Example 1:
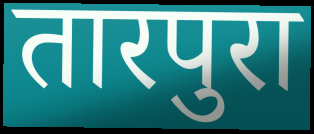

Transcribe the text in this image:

तारपुरा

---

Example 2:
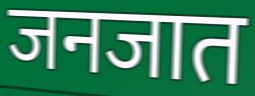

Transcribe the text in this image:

जनजात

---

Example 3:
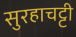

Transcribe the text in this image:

सुरहाचट्टी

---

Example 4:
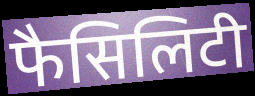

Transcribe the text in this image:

फैसिलिटी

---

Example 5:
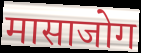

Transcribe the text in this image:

मासाजोग